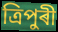
ত্ৰিপুৰী